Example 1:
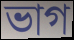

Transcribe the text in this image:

ভাগ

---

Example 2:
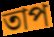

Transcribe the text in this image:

তাপ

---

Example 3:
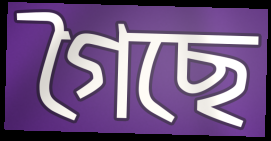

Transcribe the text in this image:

গৈছে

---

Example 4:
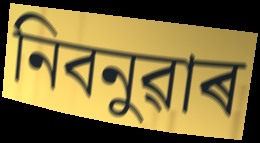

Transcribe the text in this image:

নিবনুৱাৰ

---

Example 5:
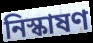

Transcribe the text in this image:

নিস্কাষণ